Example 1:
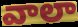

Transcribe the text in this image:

వాలా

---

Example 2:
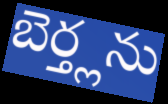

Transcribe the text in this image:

బెర్త్లను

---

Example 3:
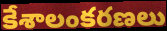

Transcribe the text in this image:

కేశాలంకరణలు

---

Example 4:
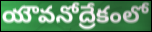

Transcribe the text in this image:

యౌవనోద్రేకంలో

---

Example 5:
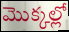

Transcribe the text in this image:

మొక్కల్లో